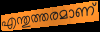
എന്തുത്തരമാണ്